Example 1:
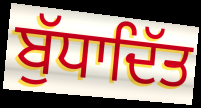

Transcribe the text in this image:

ਬੁੱਧਾਦਿੱਤ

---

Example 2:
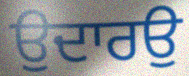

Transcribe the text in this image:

ਉਦਾਰਉ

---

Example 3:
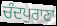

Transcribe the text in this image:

ਚੰਦਪੁਰਾਣਾ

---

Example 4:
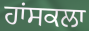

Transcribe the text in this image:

ਹਾਂਸਕਲਾ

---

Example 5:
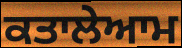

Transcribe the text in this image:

ਕਤਾਲੇਆਮ